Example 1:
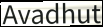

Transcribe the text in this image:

Avadhut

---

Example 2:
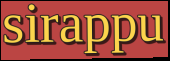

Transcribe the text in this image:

sirappu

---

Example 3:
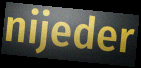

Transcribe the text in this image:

nijeder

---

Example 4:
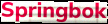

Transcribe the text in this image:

Springbok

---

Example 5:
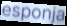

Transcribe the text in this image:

esponja